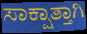
ಸಾಕ್ಷಾತ್ತಾಗಿ